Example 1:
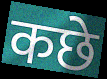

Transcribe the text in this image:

कछे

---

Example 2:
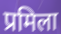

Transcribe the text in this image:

प्रमिला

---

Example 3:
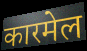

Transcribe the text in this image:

कारमेल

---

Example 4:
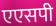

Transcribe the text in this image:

एएसपी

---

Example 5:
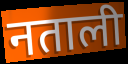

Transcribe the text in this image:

नताली